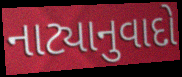
નાટ્યાનુવાદો